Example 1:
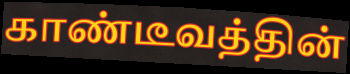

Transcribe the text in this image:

காண்டீவத்தின்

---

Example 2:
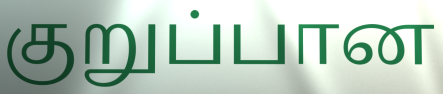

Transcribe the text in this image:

குறுப்பான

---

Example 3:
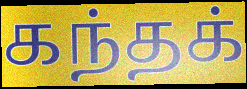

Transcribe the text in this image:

கந்தக்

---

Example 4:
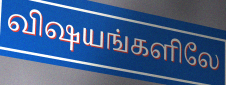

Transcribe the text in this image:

விஷயங்களிலே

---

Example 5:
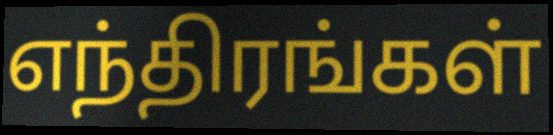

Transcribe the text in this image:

எந்திரங்கள்